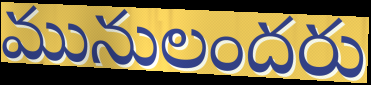
మునులందరు